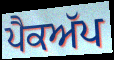
ਪੈਕਅੱਪ